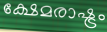
ക്ഷേമരാഷ്ട്രം